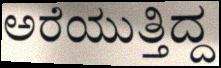
ಅರೆಯುತ್ತಿದ್ದ